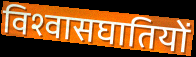
विश्वासघातियों